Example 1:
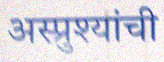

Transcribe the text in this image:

अस्प्रुश्यांची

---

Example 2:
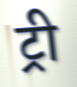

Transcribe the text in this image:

ट्री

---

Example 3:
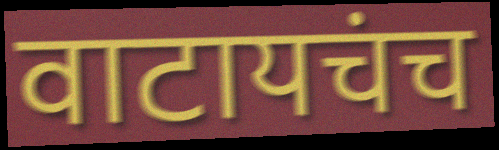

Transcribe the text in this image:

वाटायचंच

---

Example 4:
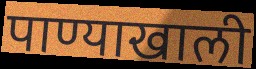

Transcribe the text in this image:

पाण्याखाली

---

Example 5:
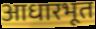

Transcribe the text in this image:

आधारभूत